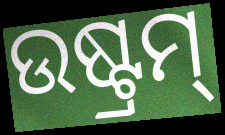
ଉଷ୍ଟ୍ରମ୍